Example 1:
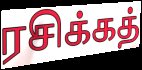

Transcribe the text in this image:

ரசிக்கத்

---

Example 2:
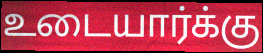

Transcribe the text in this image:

உடையார்க்கு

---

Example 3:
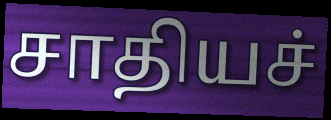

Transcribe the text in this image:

சாதியச்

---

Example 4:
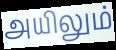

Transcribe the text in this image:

அயிலும்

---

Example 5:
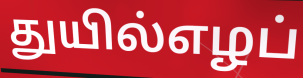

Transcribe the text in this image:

துயில்எழப்